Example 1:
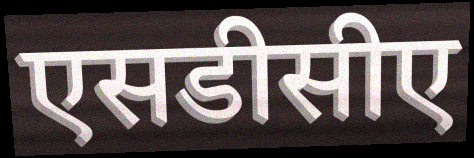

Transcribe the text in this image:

एसडीसीए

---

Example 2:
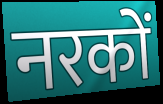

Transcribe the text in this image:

नरकों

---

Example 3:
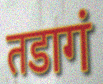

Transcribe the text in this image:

तडागं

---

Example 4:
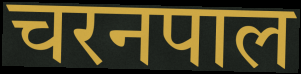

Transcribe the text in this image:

चरनपाल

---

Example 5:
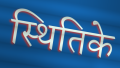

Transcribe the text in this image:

स्थितिके